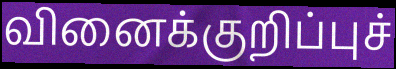
வினைக்குறிப்புச்